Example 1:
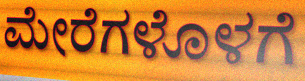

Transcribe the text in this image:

ಮೇರೆಗಳೊಳಗೆ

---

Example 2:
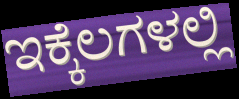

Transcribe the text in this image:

ಇಕ್ಕೆಲಗಳಲ್ಲಿ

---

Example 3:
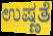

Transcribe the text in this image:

ಉಷ್ಣತೆ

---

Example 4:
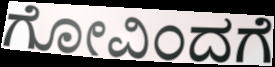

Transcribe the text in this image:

ಗೋವಿಂದಗೆ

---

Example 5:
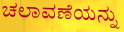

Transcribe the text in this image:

ಚಲಾವಣೆಯನ್ನು